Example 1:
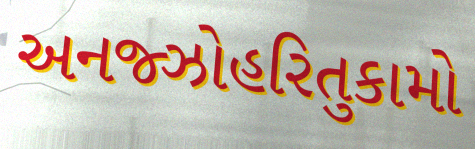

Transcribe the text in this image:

અનજ્ઝોહરિતુકામો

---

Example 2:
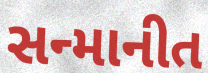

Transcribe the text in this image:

સન્માનીત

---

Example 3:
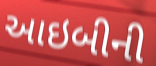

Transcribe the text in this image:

આઇબીની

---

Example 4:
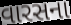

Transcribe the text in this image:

વારસના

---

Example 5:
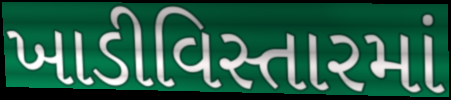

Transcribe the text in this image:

ખાડીવિસ્તારમાં